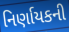
નિર્ણાયકની